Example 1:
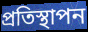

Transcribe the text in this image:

প্ৰতিস্থাপন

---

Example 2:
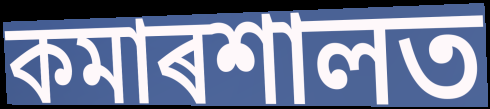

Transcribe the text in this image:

কমাৰশালত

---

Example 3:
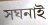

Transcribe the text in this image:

সঘনাই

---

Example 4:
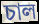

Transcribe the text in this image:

চাল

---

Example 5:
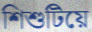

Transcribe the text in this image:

শিশুটিয়ে